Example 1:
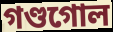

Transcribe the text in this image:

গণ্ডগোল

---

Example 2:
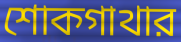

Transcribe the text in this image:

শোকগাথার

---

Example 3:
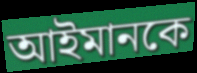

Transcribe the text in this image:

আইমানকে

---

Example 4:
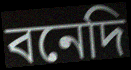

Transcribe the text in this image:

বনেদি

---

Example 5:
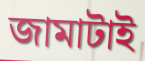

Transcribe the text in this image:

জামাটাই